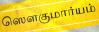
ஸௌகுமார்யம்